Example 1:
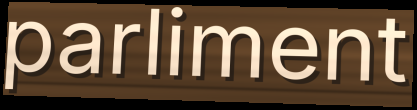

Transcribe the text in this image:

parliment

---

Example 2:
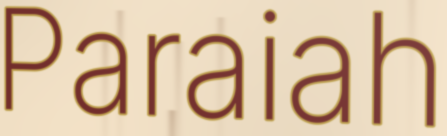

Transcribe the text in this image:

Paraiah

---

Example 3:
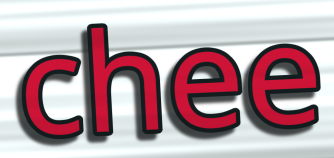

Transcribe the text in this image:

chee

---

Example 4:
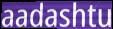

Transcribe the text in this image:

aadashtu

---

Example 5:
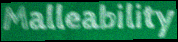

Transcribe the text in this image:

Malleability